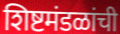
शिष्टमंडळांची